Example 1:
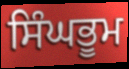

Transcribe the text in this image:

ਸਿੰਘਭੂਮ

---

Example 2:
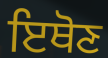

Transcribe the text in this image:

ਇਥੋਣ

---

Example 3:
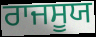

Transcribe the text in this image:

ਰਾਜਸੂਯ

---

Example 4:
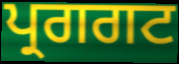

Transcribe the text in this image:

ਪ੍ਰਗਗਟ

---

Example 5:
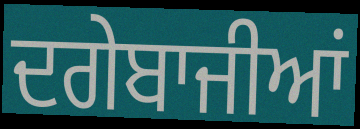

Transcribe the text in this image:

ਦਗੇਬਾਜੀਆਂ